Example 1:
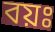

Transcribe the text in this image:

বয়ঃ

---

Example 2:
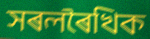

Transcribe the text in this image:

সৰলৰৈখিক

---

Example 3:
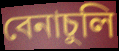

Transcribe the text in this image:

বেনাচুলি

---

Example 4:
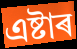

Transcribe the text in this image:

এষ্টাৰ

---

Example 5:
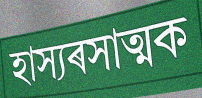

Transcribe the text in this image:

হাস্যৰসাত্মক